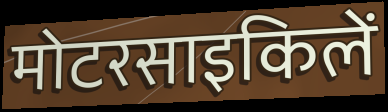
मोटरसाइकिलें